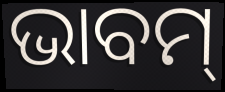
ଭାବମ୍